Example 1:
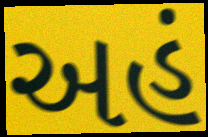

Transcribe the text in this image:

અહં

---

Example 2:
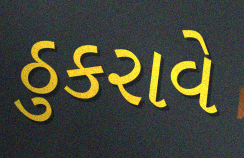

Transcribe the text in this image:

ઠુકરાવે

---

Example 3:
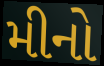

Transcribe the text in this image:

મીનો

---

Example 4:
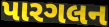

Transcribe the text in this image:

પારગલન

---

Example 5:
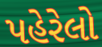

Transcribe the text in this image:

પહેરેલો